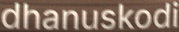
dhanuskodi